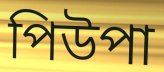
পিউপা